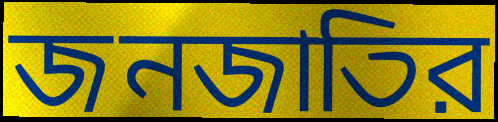
জনজাতির